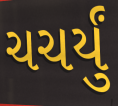
ચચર્યું